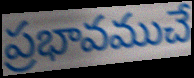
ప్రభావముచే